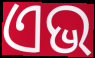
ଏଭ